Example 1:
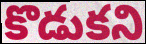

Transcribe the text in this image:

కొడుకని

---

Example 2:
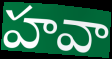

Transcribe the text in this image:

హవా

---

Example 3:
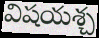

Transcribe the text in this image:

విషయశ్చ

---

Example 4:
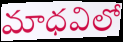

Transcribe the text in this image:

మాధవిలో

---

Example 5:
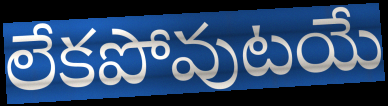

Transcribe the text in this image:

లేకపోవుటయే